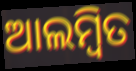
ଆଲମ୍ୱିତ